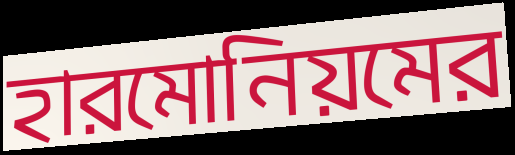
হারমোনিয়মের